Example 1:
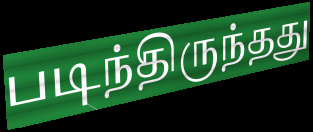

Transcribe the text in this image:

படிந்திருந்தது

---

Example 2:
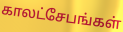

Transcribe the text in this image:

காலட்சேபங்கள்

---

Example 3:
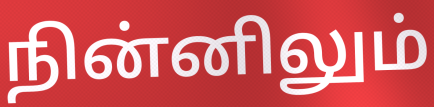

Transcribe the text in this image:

நின்னிலும்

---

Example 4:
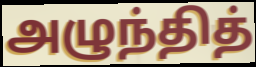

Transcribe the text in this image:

அழுந்தித்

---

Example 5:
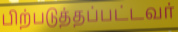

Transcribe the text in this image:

பிற்படுத்தப்பட்டவர்